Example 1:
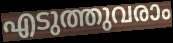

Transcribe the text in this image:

എടുത്തുവരാം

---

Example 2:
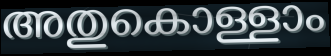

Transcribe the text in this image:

അതുകൊള്ളാം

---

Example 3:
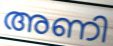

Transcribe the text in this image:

അണി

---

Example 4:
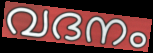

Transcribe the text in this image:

വദനം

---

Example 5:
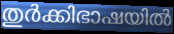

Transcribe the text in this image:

തുർക്കിഭാഷയിൽ